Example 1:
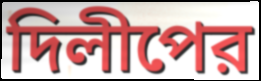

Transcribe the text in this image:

দিলীপের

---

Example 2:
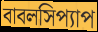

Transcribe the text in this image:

বাবলসিপ্যাপ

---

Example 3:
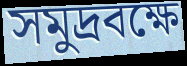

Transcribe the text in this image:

সমুদ্রবক্ষে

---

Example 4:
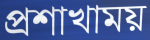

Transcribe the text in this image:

প্রশাখাময়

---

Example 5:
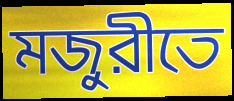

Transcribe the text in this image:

মজুরীতে